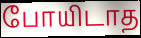
போயிடாத